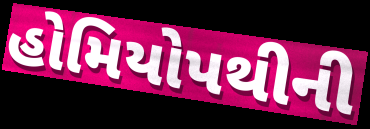
હોમિયોપથીની